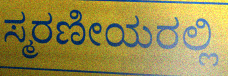
ಸ್ಮರಣೀಯರಲ್ಲಿ